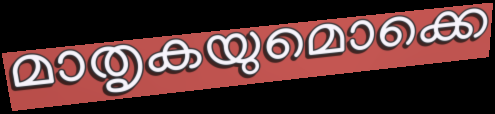
മാതൃകയുമൊക്കെ